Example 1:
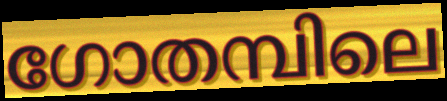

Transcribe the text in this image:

ഗോതമ്പിലെ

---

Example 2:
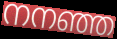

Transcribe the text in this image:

നനഞ്ഞ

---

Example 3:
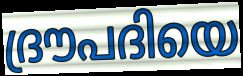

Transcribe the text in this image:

ദ്രൗപദിയെ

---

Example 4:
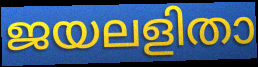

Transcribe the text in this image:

ജയലളിതാ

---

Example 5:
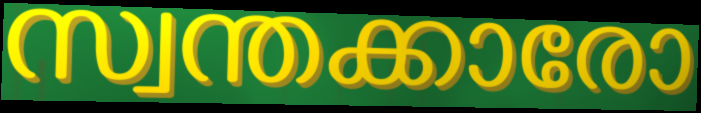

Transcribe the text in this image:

സ്വന്തക്കാരോ